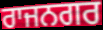
ਰਾਜਨਗਰ